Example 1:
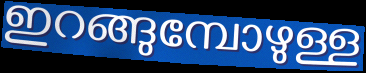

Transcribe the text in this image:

ഇറങ്ങുമ്പോഴുള്ള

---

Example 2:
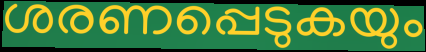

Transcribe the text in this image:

ശരണപ്പെടുകയും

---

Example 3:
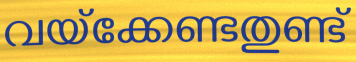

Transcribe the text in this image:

വയ്‌ക്കേണ്ടതുണ്ട്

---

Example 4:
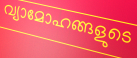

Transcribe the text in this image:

വ്യാമോഹങ്ങളുടെ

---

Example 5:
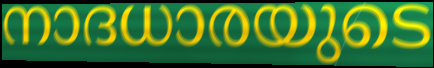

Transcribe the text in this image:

നാദധാരയുടെ